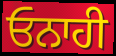
ਓਨਾਹੀ